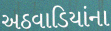
અઠવાડિયાંના